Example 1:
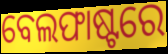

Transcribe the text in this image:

ବେଲଫାଷ୍ଟରେ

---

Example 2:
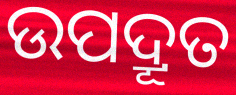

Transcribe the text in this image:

ଉପଦ୍ରୂତ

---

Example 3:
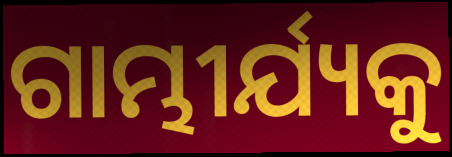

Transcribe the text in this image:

ଗାମ୍ଭୀର୍ଯ୍ୟକୁ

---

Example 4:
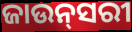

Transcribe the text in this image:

ଜାଉନ୍‌ସରୀ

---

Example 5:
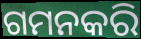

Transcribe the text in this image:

ଗମନକରି